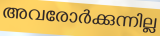
അവരോർക്കുന്നില്ല